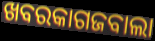
ଖବରକାଗଜବାଲା